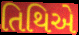
તિથિએ